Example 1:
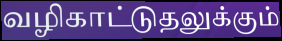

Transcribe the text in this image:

வழிகாட்டுதலுக்கும்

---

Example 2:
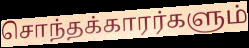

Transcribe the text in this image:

சொந்தக்காரர்களும்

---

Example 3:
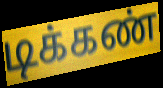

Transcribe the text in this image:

டிக்கண்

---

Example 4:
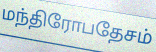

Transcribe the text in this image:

மந்திரோபதேசம்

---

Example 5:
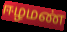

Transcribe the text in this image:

ஈழமண்